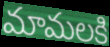
మామలకి